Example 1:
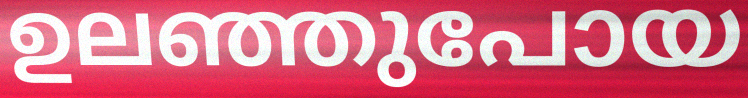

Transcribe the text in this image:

ഉലഞ്ഞുപോയ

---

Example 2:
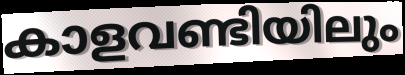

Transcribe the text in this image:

കാളവണ്ടിയിലും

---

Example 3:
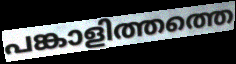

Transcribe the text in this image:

പങ്കാളിത്തത്തെ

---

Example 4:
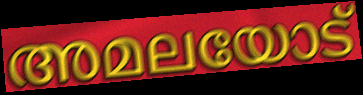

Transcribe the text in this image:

അമലയോട്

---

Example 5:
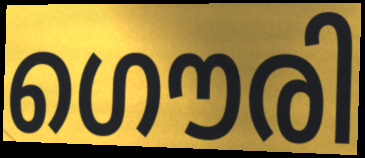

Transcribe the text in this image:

ഗൌരി